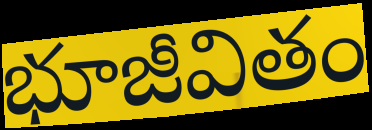
భూజీవితం